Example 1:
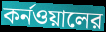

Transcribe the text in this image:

কর্নওয়ালের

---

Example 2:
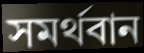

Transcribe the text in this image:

সমর্থবান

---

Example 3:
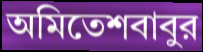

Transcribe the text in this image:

অমিতেশবাবুর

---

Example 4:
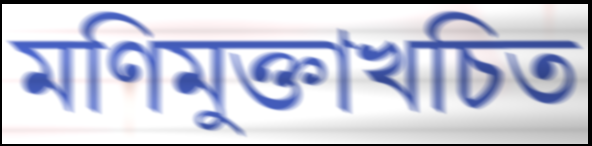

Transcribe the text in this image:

মণিমুক্তাখচিত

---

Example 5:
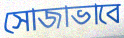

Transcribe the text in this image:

সোজাভাবে